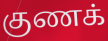
குணக்